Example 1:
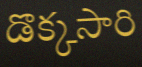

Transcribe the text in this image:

డొక్కసారి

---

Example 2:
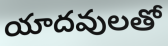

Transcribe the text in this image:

యాదవులతో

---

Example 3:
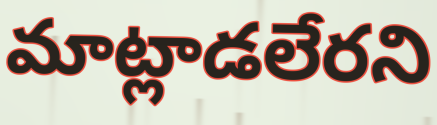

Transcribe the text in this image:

మాట్లాడలేరని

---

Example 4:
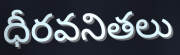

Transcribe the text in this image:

ధీరవనితలు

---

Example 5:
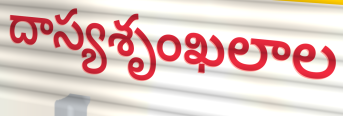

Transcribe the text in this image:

దాస్యశృంఖలాల